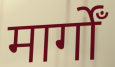
मार्गोँ